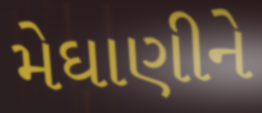
મેઘાણીને